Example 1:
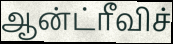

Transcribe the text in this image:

ஆன்ட்ரீவிச்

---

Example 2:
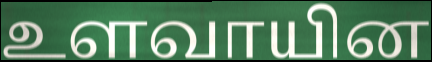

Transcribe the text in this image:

உளவாயின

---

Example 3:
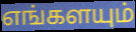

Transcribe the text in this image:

எங்களயும்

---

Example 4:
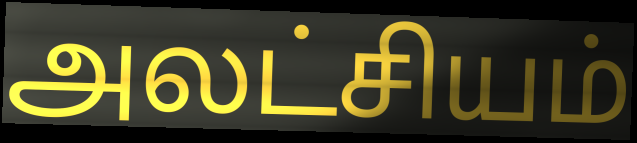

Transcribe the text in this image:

அலட்சியம்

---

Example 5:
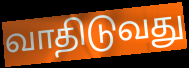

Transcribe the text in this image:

வாதிடுவது